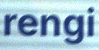
rengi